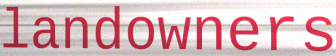
landowners